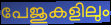
പേജുകളിലും